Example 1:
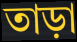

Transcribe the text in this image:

তাড়া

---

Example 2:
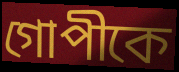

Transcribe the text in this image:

গোপীকে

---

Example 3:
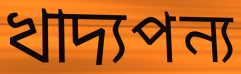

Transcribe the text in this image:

খাদ্যপন্য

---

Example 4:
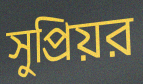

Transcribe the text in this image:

সুপ্রিয়র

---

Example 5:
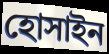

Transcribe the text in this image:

হোসাইন